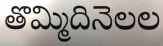
తొమ్మిదినెలల